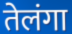
तेलंगा